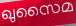
ഖുസൈമ